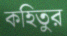
কহিতুর